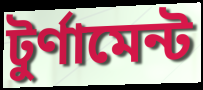
টুর্ণামেন্ট